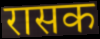
रासक